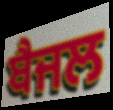
ਬੈਜਲ